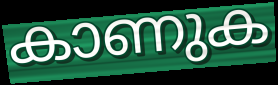
കാണുക